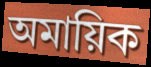
অমায়িক